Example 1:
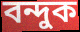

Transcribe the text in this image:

বন্দুক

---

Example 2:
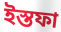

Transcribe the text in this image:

ইস্তফা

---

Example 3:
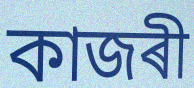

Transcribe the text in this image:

কাজৰী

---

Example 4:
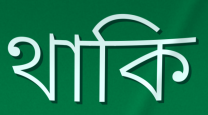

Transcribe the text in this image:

থাকি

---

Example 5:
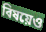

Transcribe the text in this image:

বিষয়েও